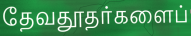
தேவதூதர்களைப்